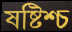
ষষ্টিশ্চ